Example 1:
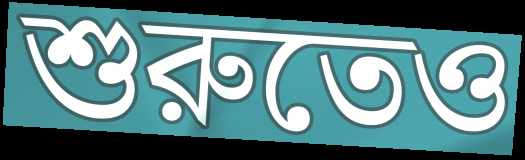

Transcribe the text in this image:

শুরুতেও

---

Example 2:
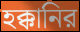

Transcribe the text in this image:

হক্কানির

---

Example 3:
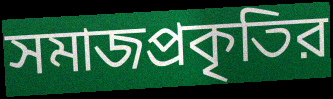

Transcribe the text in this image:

সমাজপ্রকৃতির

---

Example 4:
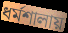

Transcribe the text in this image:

ধর্মশালায়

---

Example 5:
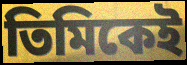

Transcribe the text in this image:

তিমিকেই